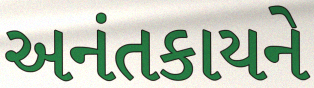
અનંતકાયને